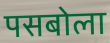
पसबोला